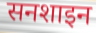
सनशाइन